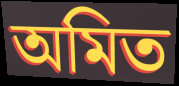
অমিত